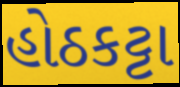
હોઠકટ્ટા